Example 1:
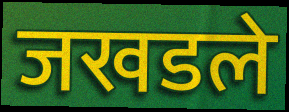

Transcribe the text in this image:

जखडले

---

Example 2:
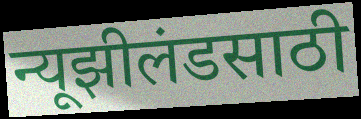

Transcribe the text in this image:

न्यूझीलंडसाठी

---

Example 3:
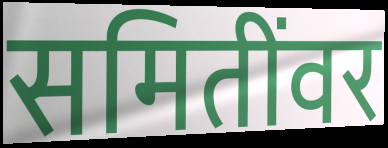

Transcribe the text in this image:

समितींवर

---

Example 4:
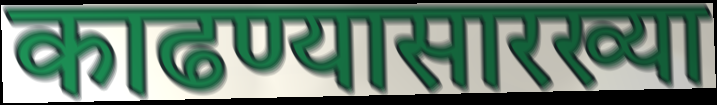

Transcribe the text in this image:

काढण्यासारख्या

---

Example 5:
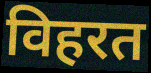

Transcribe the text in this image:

विहरत